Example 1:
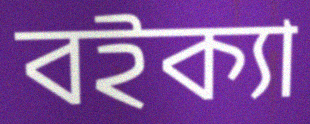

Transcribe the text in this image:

বইক্যা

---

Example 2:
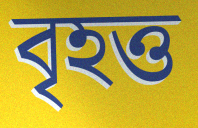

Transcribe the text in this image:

বৃহত্ত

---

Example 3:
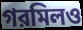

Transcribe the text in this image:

গরমিলও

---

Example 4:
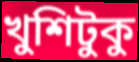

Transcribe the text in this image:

খুশিটুকু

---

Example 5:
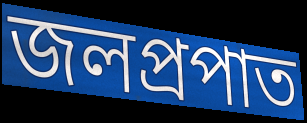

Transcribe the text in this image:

জলপ্রপাত